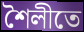
শৈলীতে